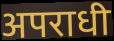
अपराधी